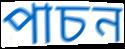
পাচন